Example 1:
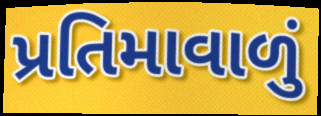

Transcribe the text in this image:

પ્રતિમાવાળું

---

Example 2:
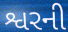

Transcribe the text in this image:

શ્વરની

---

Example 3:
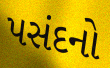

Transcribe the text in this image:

પસંદનો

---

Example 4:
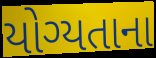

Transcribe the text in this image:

યોગ્યતાના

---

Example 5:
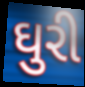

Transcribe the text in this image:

ઘુરી